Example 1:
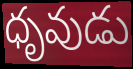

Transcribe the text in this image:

ధృవుడు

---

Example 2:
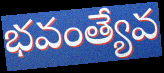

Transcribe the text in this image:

భవంత్యేవ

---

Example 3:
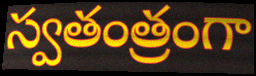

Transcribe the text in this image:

స్వతంత్రంగా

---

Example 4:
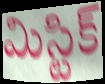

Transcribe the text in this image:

మిస్టిక్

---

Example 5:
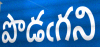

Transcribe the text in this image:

పొడఁగని